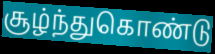
சூழ்ந்துகொண்டு